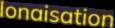
Ionaisation